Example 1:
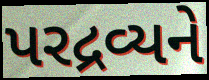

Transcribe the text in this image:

પરદ્રવ્યને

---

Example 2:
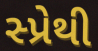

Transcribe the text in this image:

સ્પ્રેથી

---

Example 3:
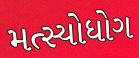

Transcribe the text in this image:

મત્સ્યોધોગ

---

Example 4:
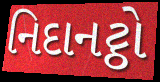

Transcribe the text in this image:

નિદાનટ્ઠો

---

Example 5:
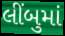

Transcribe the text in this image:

લીંબુમાં